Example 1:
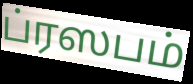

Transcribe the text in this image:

ப்ரஸபம்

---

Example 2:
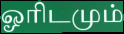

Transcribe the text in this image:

ஓரிடமும்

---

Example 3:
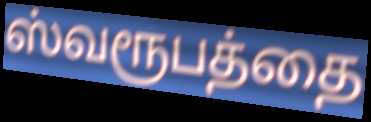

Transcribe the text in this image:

ஸ்வரூபத்தை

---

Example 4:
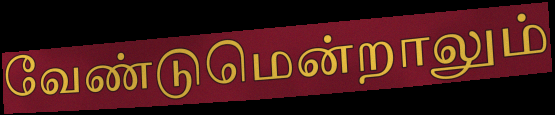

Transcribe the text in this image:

வேண்டுமென்றாலும்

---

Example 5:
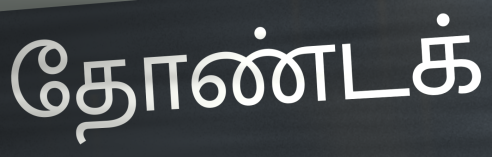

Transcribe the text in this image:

தோண்டக்